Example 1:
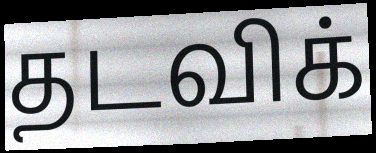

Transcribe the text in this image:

தடவிக்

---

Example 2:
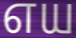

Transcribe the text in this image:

எய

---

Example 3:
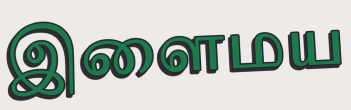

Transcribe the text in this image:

இளைமய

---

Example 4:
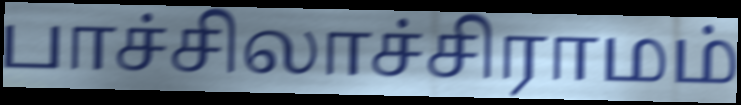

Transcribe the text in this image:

பாச்சிலாச்சிராமம்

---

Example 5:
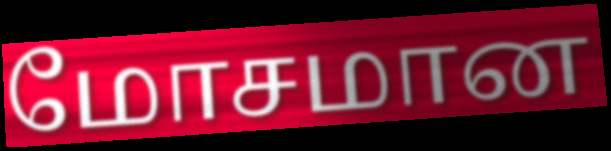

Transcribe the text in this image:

மோசமான